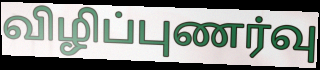
விழிப்புணர்வு